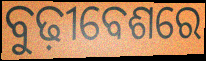
ବୁଢ଼ୀବେଶରେ